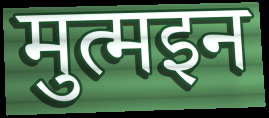
मुत्मइन